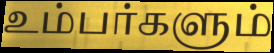
உம்பர்களும்